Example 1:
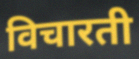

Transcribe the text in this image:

विचारती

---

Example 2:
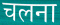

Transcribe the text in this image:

चलना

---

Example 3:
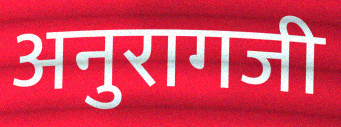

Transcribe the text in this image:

अनुरागजी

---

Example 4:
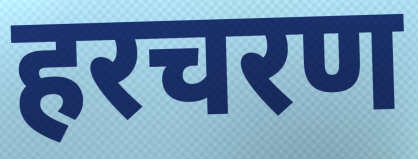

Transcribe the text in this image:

हरचरण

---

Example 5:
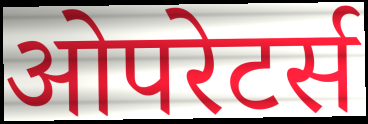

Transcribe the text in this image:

ओपरेटर्स